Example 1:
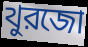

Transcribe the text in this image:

থুরজো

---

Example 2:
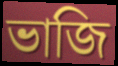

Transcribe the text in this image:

ভাজি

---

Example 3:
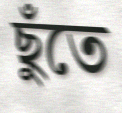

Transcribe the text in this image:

ছুঁতে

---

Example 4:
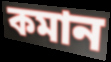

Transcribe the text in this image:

কমান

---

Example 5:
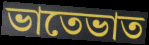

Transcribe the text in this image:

ভাতেভাত